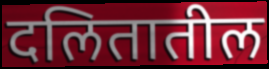
दलितातील